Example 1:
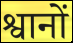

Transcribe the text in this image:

श्वानों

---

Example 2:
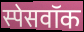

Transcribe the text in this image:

स्पेसवॉक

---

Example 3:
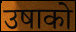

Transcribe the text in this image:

उषाको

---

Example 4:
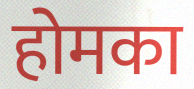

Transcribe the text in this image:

होमका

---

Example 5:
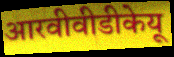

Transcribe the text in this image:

आरवीवीडीकेयू